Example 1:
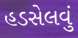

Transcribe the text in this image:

હડસેલવું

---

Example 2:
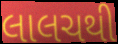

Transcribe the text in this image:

લાલચથી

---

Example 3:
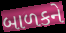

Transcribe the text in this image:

બાળકને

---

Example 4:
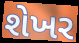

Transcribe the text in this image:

શેખર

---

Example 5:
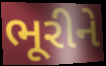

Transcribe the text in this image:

ભૂરીને